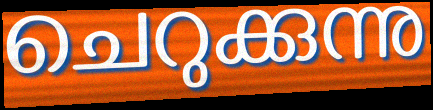
ചെറുക്കുന്നു